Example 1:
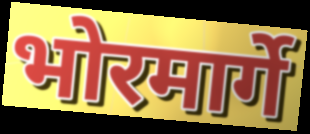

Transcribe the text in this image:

भोरमार्गे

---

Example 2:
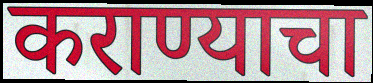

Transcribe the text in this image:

कराण्याचा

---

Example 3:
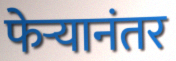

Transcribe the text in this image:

फेऱ्यानंतर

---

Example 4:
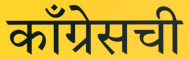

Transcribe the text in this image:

काँग्रेसची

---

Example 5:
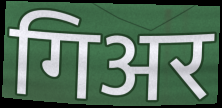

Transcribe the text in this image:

गिअर